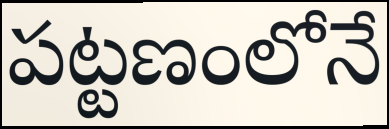
పట్టణంలోనే